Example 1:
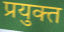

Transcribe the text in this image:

प्रयुक्त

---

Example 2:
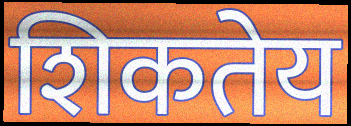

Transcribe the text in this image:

शिकतेय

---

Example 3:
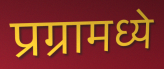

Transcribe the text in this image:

प्रग्रामध्ये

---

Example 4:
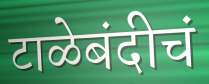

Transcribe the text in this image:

टाळेबंदीचं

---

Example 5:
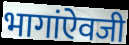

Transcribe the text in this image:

भागांऐवजी